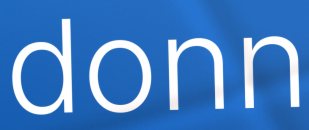
donn